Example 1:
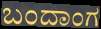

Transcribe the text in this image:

ಬಂದಾಂಗ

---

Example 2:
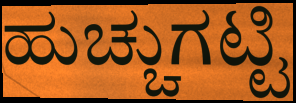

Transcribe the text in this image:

ಹುಚ್ಚುಗಟ್ಟಿ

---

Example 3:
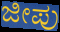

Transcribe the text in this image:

ಜೀಪು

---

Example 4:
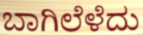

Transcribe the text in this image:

ಬಾಗಿಲೆಳೆದು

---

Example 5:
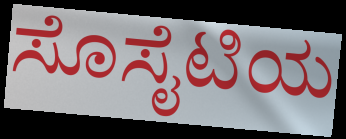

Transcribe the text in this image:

ಸೊಸೈಟಿಯ